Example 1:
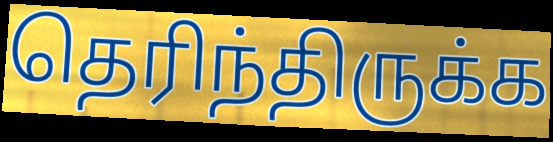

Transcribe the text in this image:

தெரிந்திருக்க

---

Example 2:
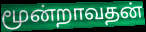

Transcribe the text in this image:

மூன்றாவதன்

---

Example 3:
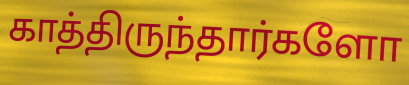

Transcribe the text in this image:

காத்திருந்தார்களோ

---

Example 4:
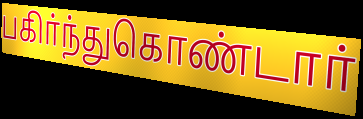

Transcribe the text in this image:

பகிர்ந்துகொண்டார்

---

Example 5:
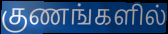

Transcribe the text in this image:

குணங்களில்